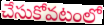
చేసుకోవటంలో